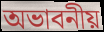
অভাবনীয়